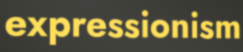
expressionism